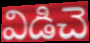
విడిచె